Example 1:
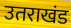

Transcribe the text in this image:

उतराखंड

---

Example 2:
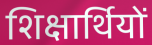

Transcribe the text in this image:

शिक्षार्थियों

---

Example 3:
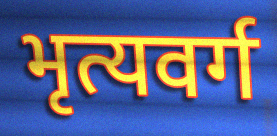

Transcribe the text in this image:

भृत्यवर्ग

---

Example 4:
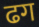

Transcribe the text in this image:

ढग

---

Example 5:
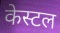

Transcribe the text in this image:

केस्टल